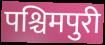
पश्चिमपुरी